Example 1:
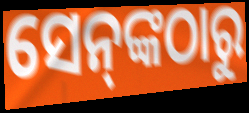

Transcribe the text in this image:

ସେନ୍‌ଙ୍କଠାରୁ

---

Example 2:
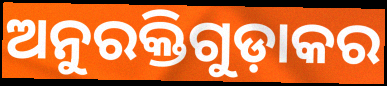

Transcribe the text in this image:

ଅନୁରକ୍ତିଗୁଡ଼ାକର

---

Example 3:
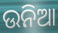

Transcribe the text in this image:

ଉନିଆ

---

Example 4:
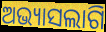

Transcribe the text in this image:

ଅଭ୍ୟାସଲାଗି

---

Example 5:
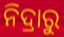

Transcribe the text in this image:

ନିଦ୍ରାରୁ